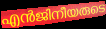
എൻജിനീയരുടെ